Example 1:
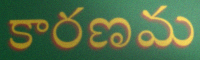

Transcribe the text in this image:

కారణమ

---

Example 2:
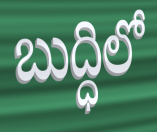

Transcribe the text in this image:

బుద్ధిలో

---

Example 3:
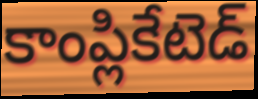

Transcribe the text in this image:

కాంప్లికేటెడ్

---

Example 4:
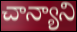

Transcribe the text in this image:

చాన్యాని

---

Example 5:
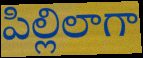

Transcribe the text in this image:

పిల్లిలాగా